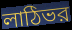
লাঠিভর